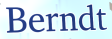
Berndt